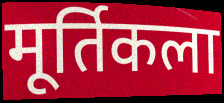
मूर्तिकला